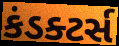
કંડક્ટર્સ